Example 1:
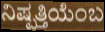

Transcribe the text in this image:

ನಿಷ್ಪತ್ತಿಯೆಂಬ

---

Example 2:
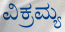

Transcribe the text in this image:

ವಿಕ್ರಮ್ಯ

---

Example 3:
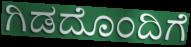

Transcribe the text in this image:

ಗಿಡದೊಂದಿಗೆ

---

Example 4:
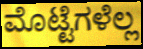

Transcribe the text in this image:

ಮೊಟ್ಟೆಗಳೆಲ್ಲ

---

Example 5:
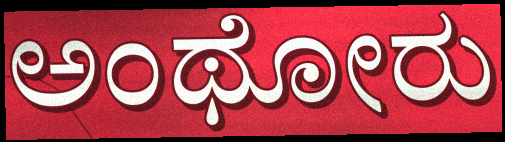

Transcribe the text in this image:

ಅಂಥೋರು